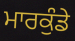
ਮਾਰਕੁੰਡੇ